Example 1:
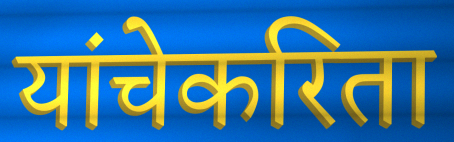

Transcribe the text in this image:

यांचेकरिता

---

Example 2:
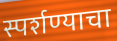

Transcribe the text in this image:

स्पर्शण्याचा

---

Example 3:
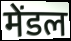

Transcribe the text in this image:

मेंडल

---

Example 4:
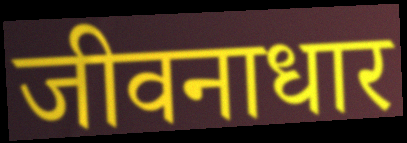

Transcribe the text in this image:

जीवनाधार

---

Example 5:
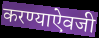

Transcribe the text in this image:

करण्याऐवजी